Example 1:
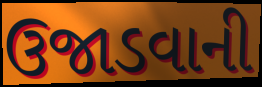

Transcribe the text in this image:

ઉજાડવાની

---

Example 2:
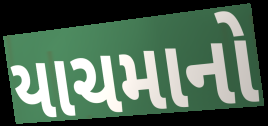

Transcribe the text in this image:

યાચમાનો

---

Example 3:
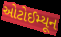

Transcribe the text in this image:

ઓટોઈમ્યૂન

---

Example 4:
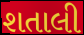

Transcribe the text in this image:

શતાલી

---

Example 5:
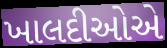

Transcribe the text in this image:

ખાલદીઓએ